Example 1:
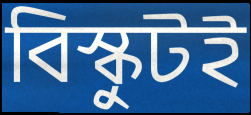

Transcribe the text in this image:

বিস্কুটই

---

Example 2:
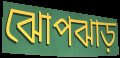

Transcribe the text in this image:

ঝোপঝাড়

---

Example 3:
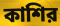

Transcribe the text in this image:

কাশির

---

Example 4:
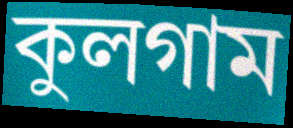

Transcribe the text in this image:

কুলগাম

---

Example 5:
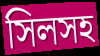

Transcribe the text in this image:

সিলসহ